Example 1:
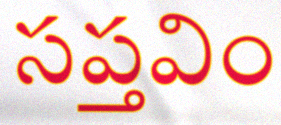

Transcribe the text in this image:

సప్తవిం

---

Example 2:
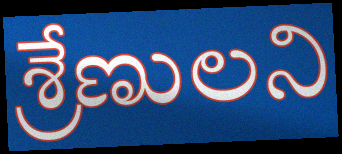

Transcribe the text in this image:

శ్రేణులని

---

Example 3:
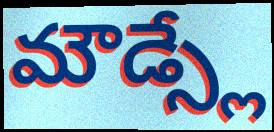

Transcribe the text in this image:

మౌడ్స్లే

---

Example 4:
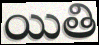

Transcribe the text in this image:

యితి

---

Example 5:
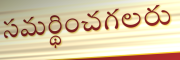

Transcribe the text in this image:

సమర్థించగలరు